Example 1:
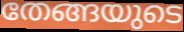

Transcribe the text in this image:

തേങ്ങയുടെ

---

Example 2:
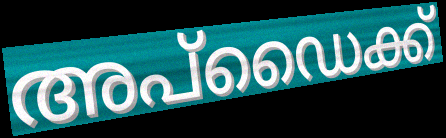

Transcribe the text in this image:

അപ്ഡൈക്ക്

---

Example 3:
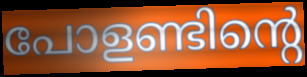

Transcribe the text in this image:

പോളണ്ടിന്റെ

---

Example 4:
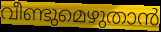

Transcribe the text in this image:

വീണ്ടുമെഴുതാൻ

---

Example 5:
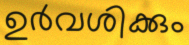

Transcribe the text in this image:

ഉർവശിക്കും